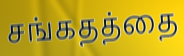
சங்கதத்தை